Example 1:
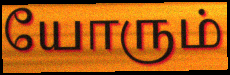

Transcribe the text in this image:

யோரும்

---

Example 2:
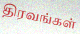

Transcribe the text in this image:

திரவங்கள்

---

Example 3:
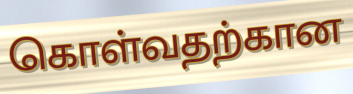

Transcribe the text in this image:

கொள்வதற்கான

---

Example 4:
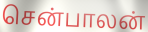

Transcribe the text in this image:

சென்பாலன்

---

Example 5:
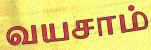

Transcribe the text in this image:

வயசாம்